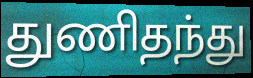
துணிதந்து